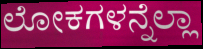
ಲೋಕಗಳನ್ನೆಲ್ಲಾ